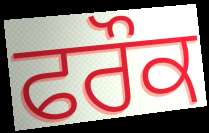
ਫਰੌਕ